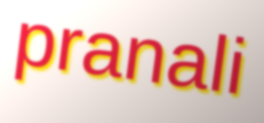
pranali